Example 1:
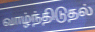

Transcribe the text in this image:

வாழ்ந்திடுதல்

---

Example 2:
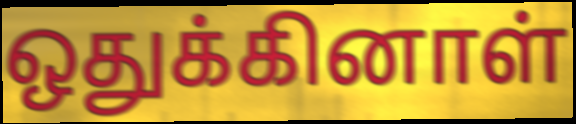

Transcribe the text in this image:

ஒதுக்கினாள்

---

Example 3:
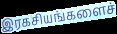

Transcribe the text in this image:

இரகசியங்களைச்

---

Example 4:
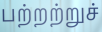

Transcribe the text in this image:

பற்றற்றுச்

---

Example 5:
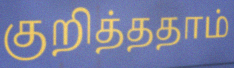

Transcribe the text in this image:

குறித்ததாம்